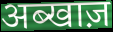
अब्खाज़